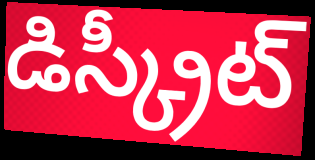
డిస్క్రీట్